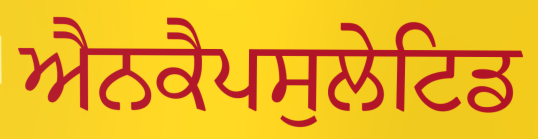
ਐਨਕੈਪਸੁਲੇਟਿਡ